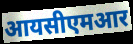
आयसीएमआर